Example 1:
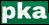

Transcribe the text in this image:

pka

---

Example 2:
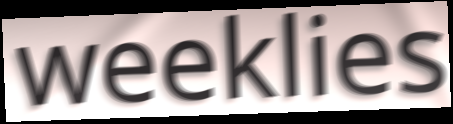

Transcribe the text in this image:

weeklies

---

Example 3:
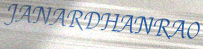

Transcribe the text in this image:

JANARDHANRAO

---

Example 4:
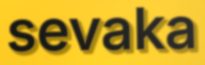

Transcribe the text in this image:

sevaka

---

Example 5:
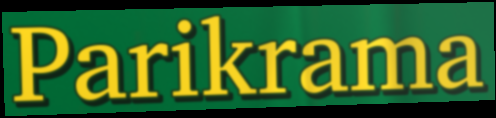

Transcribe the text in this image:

Parikrama